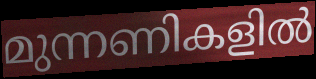
മുന്നണികളിൽ